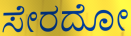
ಸೇರದೋ